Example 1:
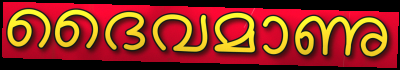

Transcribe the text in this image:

ദൈവമാണു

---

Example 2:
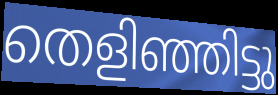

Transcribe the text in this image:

തെളിഞ്ഞിട്ടു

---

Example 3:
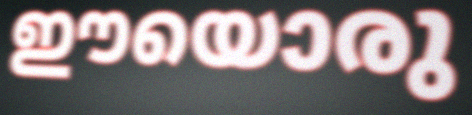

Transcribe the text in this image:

ഈയൊരു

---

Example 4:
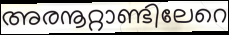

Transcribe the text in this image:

അരനൂറ്റാണ്ടിലേറെ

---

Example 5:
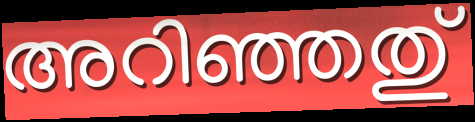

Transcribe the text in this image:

അറിഞ്ഞതു്